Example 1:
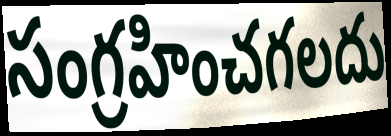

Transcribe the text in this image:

సంగ్రహించగలదు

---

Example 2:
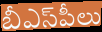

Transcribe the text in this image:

బీఎస్‌పీలు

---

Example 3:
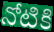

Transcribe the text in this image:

నోటికి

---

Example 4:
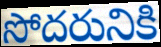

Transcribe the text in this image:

సోదరునికి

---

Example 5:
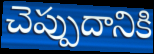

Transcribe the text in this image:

చెప్పుదానికి